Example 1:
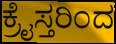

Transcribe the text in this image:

ಕ್ರೈಸ್ತರಿಂದ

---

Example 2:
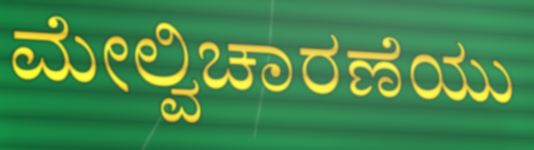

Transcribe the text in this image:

ಮೇಲ್ವಿಚಾರಣೆಯು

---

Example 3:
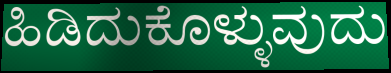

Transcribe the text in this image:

ಹಿಡಿದುಕೊಳ್ಳುವುದು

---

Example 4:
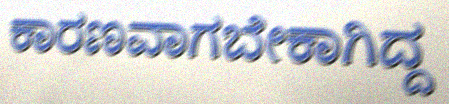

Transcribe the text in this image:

ಕಾರಣವಾಗಬೇಕಾಗಿದ್ದ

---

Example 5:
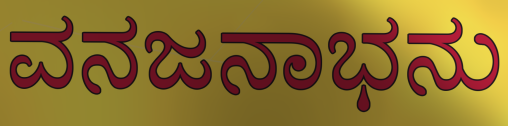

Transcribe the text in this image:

ವನಜನಾಭನು